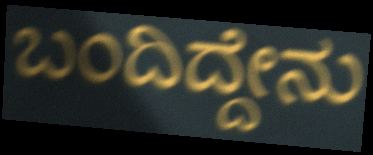
ಬಂದಿದ್ದೇನು